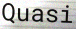
Quasi